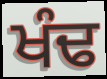
ਖੰਢ